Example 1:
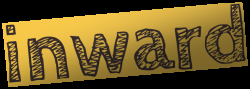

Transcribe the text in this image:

inward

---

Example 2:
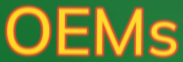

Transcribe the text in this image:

OEMs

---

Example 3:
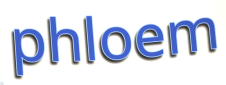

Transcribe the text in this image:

phloem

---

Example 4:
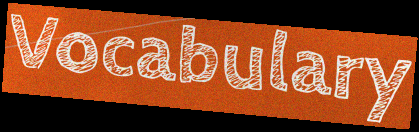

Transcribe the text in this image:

Vocabulary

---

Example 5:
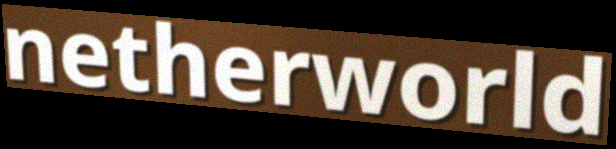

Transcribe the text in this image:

netherworld